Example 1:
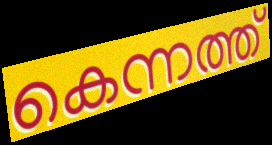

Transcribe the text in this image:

കെന്നത്ത്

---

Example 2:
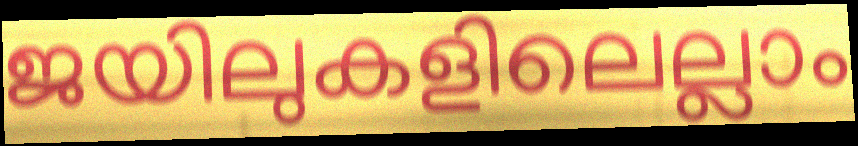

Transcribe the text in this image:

ജയിലുകളിലെല്ലാം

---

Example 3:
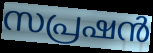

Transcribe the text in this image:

സപ്രഷൻ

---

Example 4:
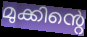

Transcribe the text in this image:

മുക്കിന്റെ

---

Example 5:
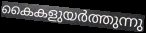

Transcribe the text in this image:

കൈകളുയർത്തുന്നു